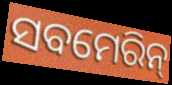
ସବମେରିନ୍